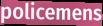
policemens